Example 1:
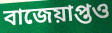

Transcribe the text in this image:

বাজেয়াপ্তও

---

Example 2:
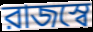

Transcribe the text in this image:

রাজস্বে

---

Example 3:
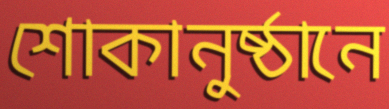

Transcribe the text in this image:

শোকানুষ্ঠানে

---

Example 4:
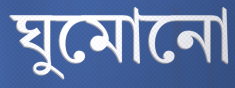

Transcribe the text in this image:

ঘুমোনো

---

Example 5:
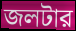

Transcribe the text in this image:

জলটার